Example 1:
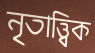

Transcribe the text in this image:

নৃতাত্ত্বিক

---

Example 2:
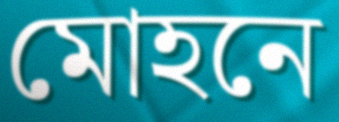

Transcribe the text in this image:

মোহনে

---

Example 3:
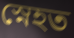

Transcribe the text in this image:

স্নেহত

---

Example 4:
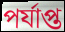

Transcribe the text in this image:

পৰ্যাপ্ত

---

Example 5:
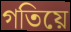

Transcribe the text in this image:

গতিয়ে